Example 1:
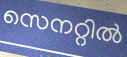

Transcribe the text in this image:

സെനറ്റിൽ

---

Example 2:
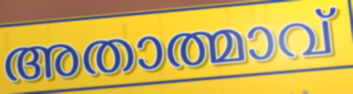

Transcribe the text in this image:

അതാത്മാവ്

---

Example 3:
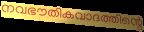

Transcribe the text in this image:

നവഭൗതികവാദത്തിന്റെ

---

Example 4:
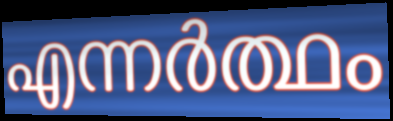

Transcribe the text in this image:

എന്നർത്ഥം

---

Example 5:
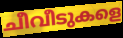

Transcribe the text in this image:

ചീവീടുകളെ